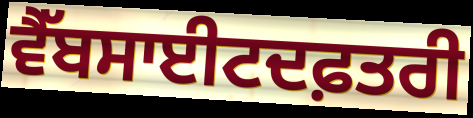
ਵੈੱਬਸਾਈਟਦਫ਼ਤਰੀ